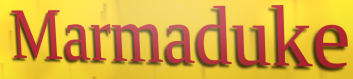
Marmaduke